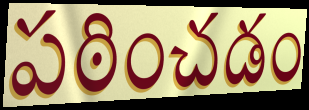
పఠించడం